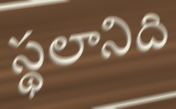
స్థలానిది